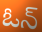
ఓన్